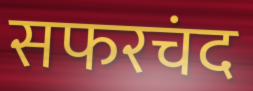
सफरचंद